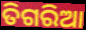
ତିଗରିଆ